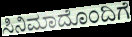
ಸಿನಿಮಾದೊಂದಿಗೆ